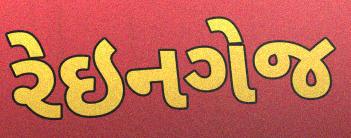
રેઇનગેજ